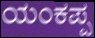
ಯಂಕಪ್ಪ